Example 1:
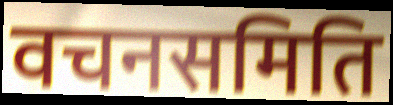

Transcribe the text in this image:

वचनसमिति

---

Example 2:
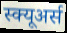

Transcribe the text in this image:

स्क्यूअर्स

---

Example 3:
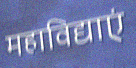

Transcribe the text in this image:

महाविद्याएं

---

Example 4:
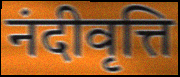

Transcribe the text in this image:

नंदीवृत्ति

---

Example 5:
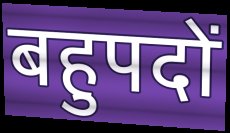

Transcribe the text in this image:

बहुपदों